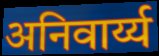
अनिवार्य्य